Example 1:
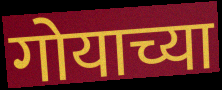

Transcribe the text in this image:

गोयाच्या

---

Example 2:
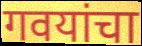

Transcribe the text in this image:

गवयांचा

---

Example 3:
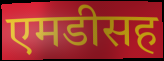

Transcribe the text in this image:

एमडीसह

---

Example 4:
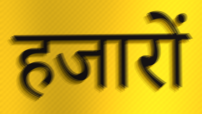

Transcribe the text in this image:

हजारों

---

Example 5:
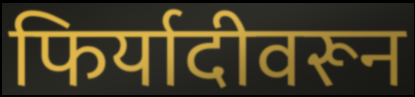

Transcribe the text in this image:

फिर्यादीवरून